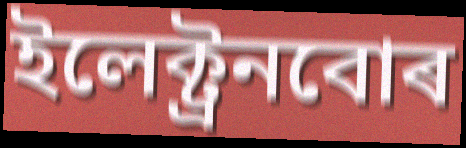
ইলেক্ট্ৰনবোৰ